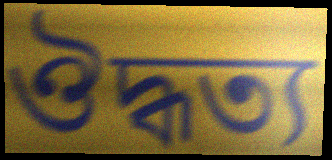
ঔদ্ধত্য